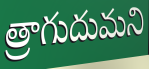
త్రాగుదుమని